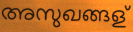
അസുഖങ്ങള്